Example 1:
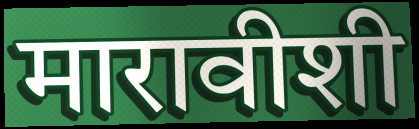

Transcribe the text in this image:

मारावीशी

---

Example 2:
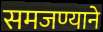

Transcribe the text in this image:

समजण्याने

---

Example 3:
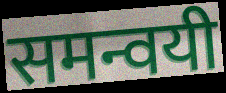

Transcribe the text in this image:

समन्वयी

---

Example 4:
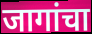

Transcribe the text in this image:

जागांचा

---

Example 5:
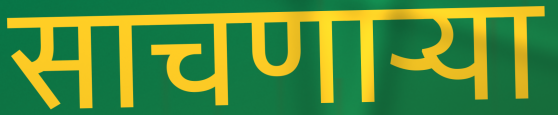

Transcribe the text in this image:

साचणार्‍या